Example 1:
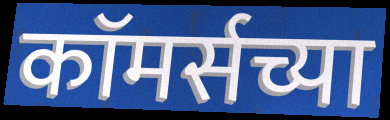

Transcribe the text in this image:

कॉमर्सच्या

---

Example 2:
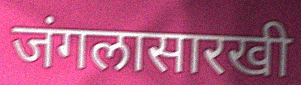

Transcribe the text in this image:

जंगलासारखी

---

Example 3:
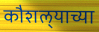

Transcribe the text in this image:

कौशल्याच्या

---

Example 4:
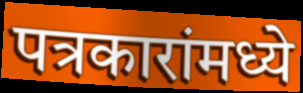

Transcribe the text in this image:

पत्रकारांमध्ये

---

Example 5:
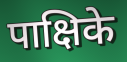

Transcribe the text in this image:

पाक्षिके